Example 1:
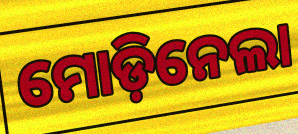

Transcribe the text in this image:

ମୋଡ଼ିନେଲା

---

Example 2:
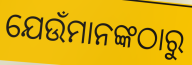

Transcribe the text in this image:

ଯେଉଁମାନଙ୍କଠାରୁ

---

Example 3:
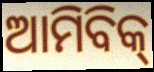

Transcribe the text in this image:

ଆମିବିକ୍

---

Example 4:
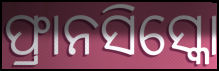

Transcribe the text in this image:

ଫ୍ରାନସିସ୍କୋ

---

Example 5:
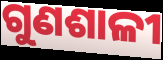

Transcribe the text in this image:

ଗୁଣଶାଳୀ